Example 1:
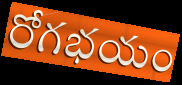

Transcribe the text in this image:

రోగభయం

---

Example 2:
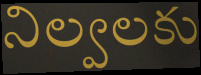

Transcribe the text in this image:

నిల్వలకు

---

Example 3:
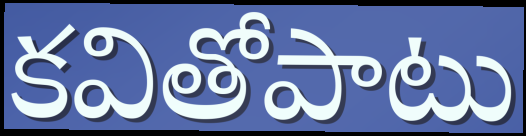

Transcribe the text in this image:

కవితోపాటు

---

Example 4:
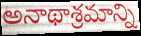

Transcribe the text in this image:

అనాథాశ్రమాన్ని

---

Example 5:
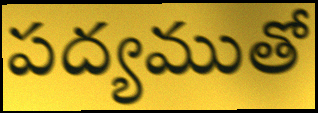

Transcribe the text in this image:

పద్యముతో